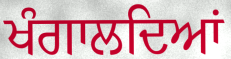
ਖੰਗਾਲਦਿਆਂ